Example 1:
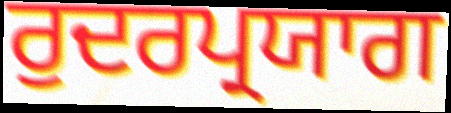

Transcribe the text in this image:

ਰੁਦਰਪ੍ਰਯਾਗ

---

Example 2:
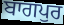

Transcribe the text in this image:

ਬਾਗਪੁਰ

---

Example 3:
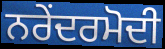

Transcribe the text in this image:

ਨਰੇਂਦਰਮੋਦੀ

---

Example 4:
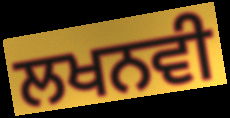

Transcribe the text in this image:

ਲਖਨਵੀ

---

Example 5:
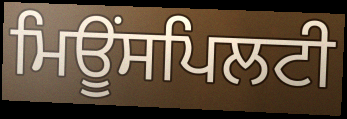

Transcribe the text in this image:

ਮਿਊਂਸਪਿਲਟੀ